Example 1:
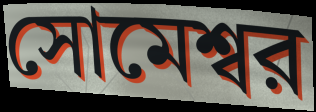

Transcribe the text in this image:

সোমেশ্বর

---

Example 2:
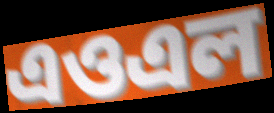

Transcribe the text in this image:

এওএল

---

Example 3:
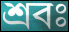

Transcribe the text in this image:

শ্রবঃ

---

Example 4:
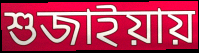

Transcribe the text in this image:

শুজাইয়ায়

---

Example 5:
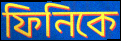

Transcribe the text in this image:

ফিনিকে